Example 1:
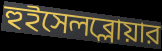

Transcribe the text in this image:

হুইসেলব্লোয়ার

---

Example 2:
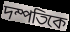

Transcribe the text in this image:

দম্পতিকে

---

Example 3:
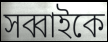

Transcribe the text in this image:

সব্বাইকে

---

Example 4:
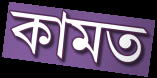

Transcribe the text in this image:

কামত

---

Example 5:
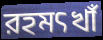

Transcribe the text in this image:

রহমৎখাঁ